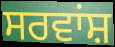
ਸਰਵਾਂਸ਼